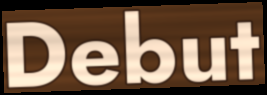
Debut